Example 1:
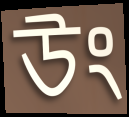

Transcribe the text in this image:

উং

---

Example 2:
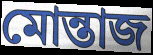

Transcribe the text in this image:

মোন্তাজ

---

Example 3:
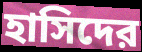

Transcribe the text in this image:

হাসিদের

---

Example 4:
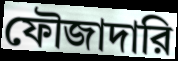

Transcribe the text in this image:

ফৌজাদারি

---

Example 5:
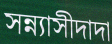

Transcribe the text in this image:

সন্ন্যাসীদাদা